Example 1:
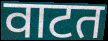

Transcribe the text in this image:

वाटत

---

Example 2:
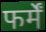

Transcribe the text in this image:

फर्में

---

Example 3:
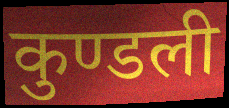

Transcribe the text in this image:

कुण्डली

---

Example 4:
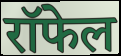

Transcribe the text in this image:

रॉफेल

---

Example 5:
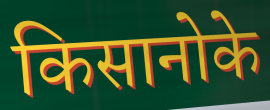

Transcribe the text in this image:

किसानोके